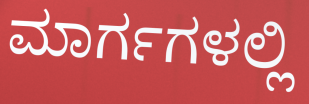
ಮಾರ್ಗಗಳಲ್ಲಿ